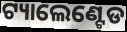
ଟ୍ୟାଲେଣ୍ଟେଡ